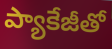
ప్యాకేజీతో